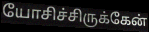
யோசிச்சிருக்கேன்